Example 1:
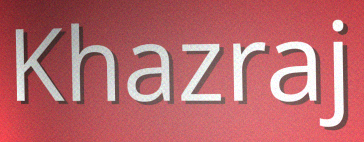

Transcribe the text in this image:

Khazraj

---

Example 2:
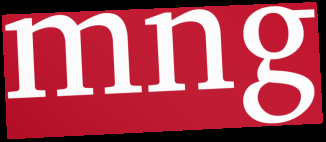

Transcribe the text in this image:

mng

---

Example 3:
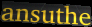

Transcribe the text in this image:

ansuthe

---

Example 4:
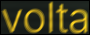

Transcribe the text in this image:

volta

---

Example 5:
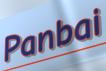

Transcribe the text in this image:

Panbai